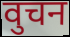
वुचन